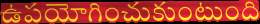
ఉపయోగించుకుంటుంది